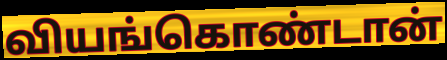
வியங்கொண்டான்